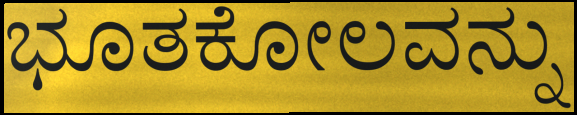
ಭೂತಕೋಲವನ್ನು